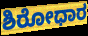
ಶಿರೋಧಾರ